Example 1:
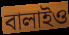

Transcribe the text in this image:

বালাইও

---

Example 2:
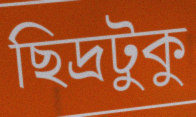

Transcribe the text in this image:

ছিদ্রটুকু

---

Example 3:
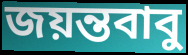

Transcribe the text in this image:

জয়ন্তবাবু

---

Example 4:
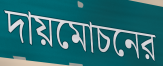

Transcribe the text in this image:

দায়মোচনের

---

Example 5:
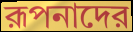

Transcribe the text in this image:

রূপনাদের